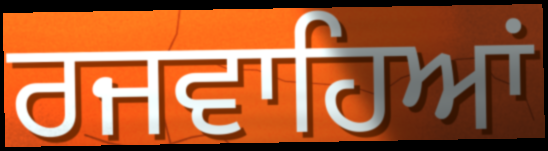
ਰਜਵਾਹਿਆਂ